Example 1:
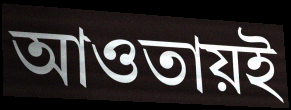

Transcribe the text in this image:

আওতায়ই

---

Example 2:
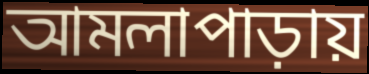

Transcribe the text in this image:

আমলাপাড়ায়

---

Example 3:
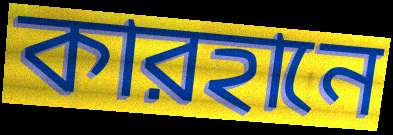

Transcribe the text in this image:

কারহানে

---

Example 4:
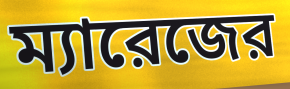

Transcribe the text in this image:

ম্যারেজের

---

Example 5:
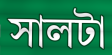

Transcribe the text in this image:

সালটা